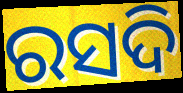
ରସଦି